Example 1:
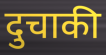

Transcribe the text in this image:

दुचाकी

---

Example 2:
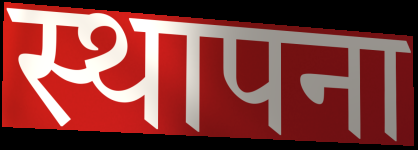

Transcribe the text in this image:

स्थापना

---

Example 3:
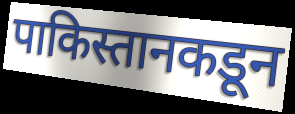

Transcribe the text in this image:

पाकिस्तानकडून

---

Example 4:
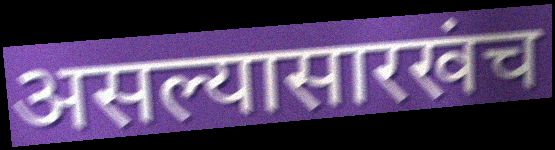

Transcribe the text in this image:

असल्यासारखंच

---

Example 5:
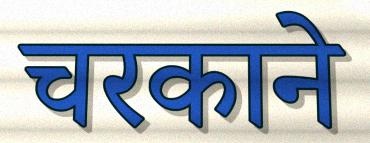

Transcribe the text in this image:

चरकाने